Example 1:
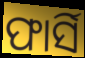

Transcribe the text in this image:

ଫାର୍ସି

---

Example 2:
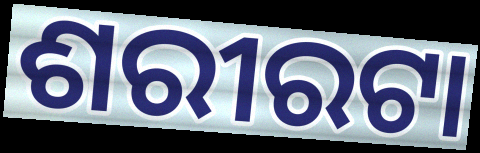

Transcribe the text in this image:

ଶରୀରଟା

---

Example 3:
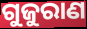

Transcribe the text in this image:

ଗୁଜୁରାଣ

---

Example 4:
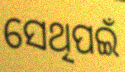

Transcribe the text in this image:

ସେଥିପଇଁ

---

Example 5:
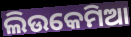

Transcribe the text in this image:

ଲିଉକେମିଆ